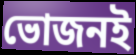
ভোজনই